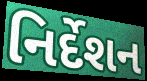
નિર્દેશન